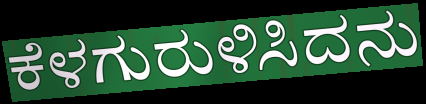
ಕೆಳಗುರುಳಿಸಿದನು